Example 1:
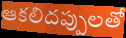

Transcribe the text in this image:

ఆకలిదప్పులతో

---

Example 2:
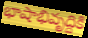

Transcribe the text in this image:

భాషాభివృద్దికి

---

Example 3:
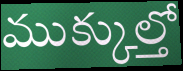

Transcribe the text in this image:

ముక్కుల్తో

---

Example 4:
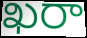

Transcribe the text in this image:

ఖరా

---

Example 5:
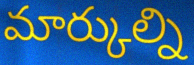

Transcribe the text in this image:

మార్కుల్ని